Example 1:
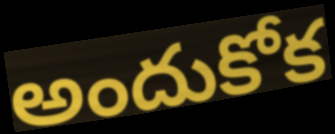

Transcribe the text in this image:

అందుకోక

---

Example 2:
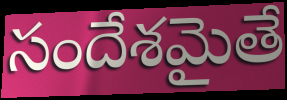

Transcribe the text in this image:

సందేశమైతే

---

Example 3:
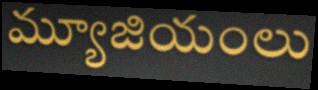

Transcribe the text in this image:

మ్యూజియంలు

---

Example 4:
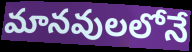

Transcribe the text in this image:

మానవులలోనే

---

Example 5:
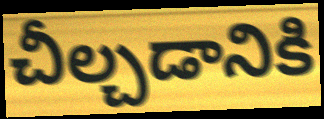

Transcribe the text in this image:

చీల్చడానికి